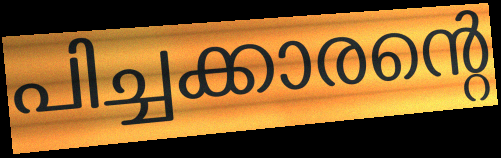
പിച്ചക്കാരന്റെ